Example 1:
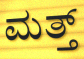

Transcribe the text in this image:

ಮತ್ತ್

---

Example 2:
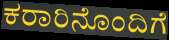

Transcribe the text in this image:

ಕರಾರಿನೊಂದಿಗೆ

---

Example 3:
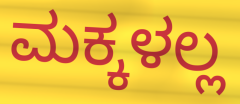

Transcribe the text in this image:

ಮಕ್ಕಳಲ್ಲ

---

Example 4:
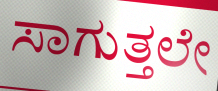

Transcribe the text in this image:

ಸಾಗುತ್ತಲೇ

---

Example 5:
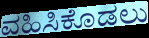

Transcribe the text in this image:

ವಹಿಸಿಕೊಡಲು